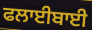
ਫਲਾਈਬਾਈ